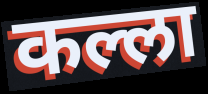
कल्ला